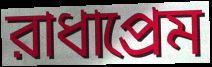
রাধাপ্রেম